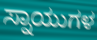
ಸ್ನಾಯುಗಳ